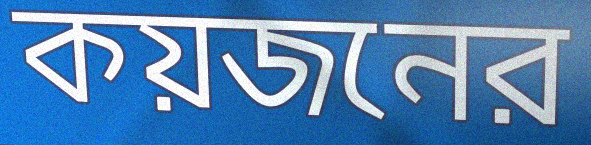
কয়জনের